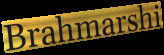
Brahmarshi